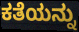
ಕತೆಯನ್ನು